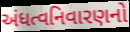
અંધત્વનિવારણનો